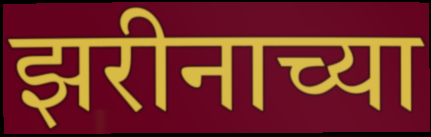
झरीनाच्या